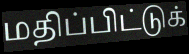
மதிப்பிட்டுக்